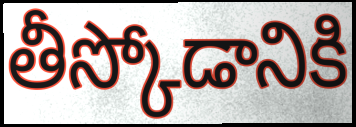
తీస్కోడానికి